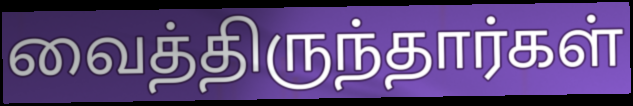
வைத்திருந்தார்கள்